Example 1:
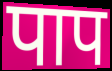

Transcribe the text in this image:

पाप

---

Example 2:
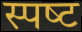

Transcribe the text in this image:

स्‍पष्‍ट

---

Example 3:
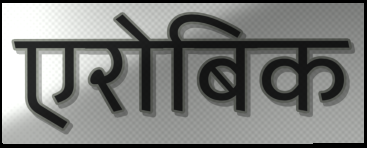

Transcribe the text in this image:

एरोबिक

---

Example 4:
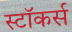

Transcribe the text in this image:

स्टॉकर्स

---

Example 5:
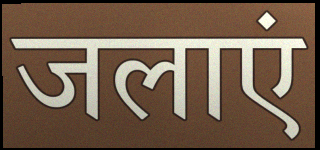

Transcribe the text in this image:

जलाएं